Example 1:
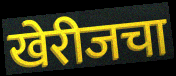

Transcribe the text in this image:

खेरीजचा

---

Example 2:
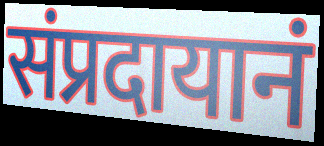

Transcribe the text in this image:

संप्रदायानं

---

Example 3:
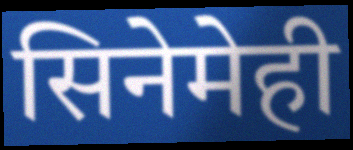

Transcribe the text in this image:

सिनेमेही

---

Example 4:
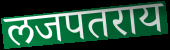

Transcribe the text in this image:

लजपतराय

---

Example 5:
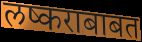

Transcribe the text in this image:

लष्कराबाबत